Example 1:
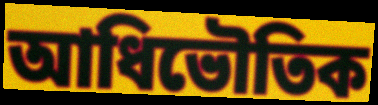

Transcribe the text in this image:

আধিভৌতিক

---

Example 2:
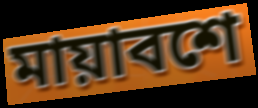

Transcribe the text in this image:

মায়াবশে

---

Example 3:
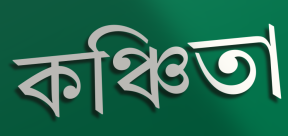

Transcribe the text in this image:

কঞ্চিতা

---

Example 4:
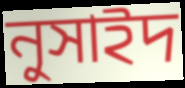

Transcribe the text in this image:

নুসাইদ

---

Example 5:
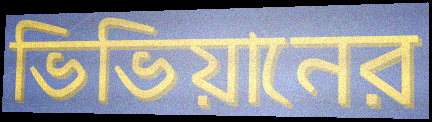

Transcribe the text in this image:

ভিভিয়ানের